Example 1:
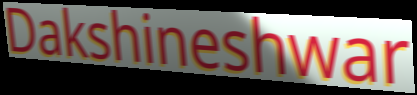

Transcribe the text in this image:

Dakshineshwar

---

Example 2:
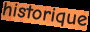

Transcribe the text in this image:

historique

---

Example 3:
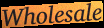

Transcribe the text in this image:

Wholesale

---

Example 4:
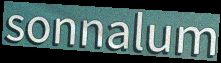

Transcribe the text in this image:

sonnalum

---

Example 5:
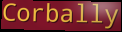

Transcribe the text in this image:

Corbally